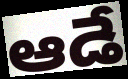
ఆడే